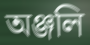
অঞ্জলি